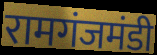
रामगंजमंडी